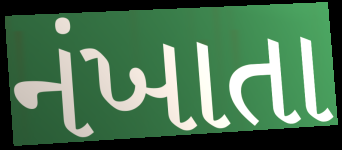
નંખાતા